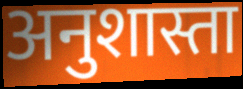
अनुशास्ता